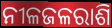
ନୀଳଜଳରାଶି